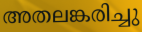
അതലങ്കരിച്ചു